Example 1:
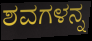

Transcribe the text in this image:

ಶವಗಳನ್ನ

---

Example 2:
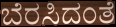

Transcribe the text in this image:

ಬೆರಸಿದಂತೆ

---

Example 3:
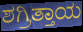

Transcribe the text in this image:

ಶಗ್ರಿತ್ತಾಯ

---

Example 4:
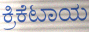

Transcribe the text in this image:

ಕ್ರಿಕೆಟಾಯ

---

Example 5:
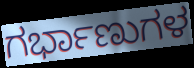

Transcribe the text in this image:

ಗರ್ಭಾಣುಗಳ